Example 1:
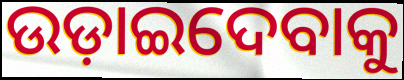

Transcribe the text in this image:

ଉଡ଼ାଇଦେବାକୁ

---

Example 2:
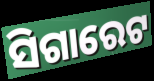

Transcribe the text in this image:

ସିଗାରେଟ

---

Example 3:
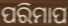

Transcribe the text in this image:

ପରିମାପ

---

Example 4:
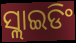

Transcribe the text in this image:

ସ୍ଲାଇଡିଂ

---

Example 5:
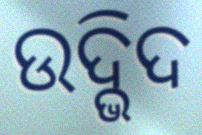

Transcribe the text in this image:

ଉଦ୍ଭିଦ